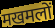
मखमलों